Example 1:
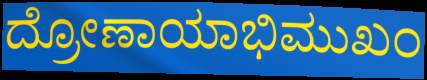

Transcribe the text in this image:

ದ್ರೋಣಾಯಾಭಿಮುಖಂ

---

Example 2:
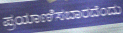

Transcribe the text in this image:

ಪ್ರಯಾಣಿಸಬಾರದೆಂದು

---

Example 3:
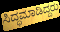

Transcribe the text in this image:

ಸಿದ್ಧಮಾಡಿದ್ದರು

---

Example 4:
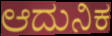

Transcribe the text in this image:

ಆದುನಿಕ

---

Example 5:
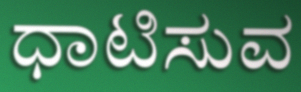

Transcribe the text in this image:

ಧಾಟಿಸುವ